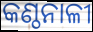
କଣ୍ଠନାଳୀ